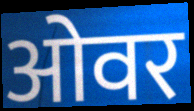
ओवर